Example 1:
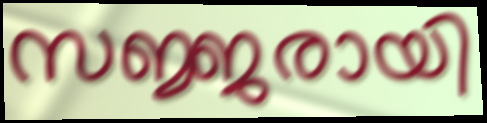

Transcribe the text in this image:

സജ്ജരായി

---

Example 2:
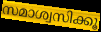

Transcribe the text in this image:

സമാശ്വസിക്കൂ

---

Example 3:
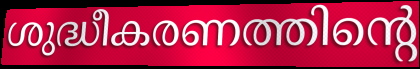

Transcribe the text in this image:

ശുദ്ധീകരണത്തിന്റെ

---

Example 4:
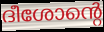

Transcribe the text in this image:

ദീശോന്റെ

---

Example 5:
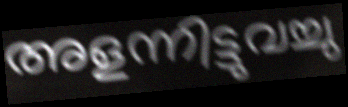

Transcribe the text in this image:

അളന്നിട്ടുവച്ചു